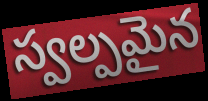
స్వల్పమైన